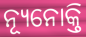
ନ୍ୟୂନୋକ୍ତି